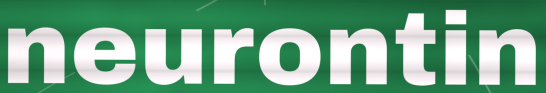
neurontin